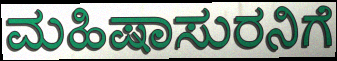
ಮಹಿಷಾಸುರನಿಗೆ